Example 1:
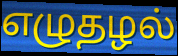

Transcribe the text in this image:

எழுதழல்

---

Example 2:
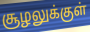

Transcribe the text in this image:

சூழலுக்குள்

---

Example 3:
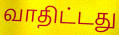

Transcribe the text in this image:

வாதிட்டது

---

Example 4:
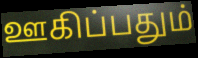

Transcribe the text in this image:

ஊகிப்பதும்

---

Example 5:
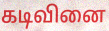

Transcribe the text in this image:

கடிவினை